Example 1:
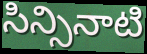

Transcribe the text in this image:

సిన్సినాటి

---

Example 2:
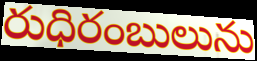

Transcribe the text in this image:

రుధిరంబులును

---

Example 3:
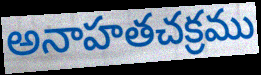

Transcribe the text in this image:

అనాహతచక్రము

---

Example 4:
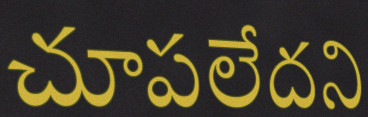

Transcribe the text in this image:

చూపలేదని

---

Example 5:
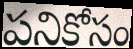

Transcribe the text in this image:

పనికోసం